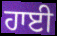
ਹਾਈ